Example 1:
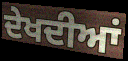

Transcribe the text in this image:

ਦੇਖਦੀਆਂ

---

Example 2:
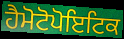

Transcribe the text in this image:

ਹੈਮੋਟੋਪੋਇਟਿਕ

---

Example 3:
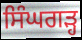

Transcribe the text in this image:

ਸਿੰਘਗੜ੍ਹ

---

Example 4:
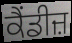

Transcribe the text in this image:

ਕੈਂਡੀਜ਼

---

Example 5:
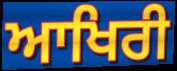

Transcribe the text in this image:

ਆਖਿਰੀ